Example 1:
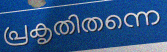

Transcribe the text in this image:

പ്രകൃതിതന്നെ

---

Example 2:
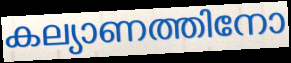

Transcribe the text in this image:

കല്യാണത്തിനോ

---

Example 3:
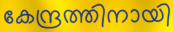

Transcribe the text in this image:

കേന്ദ്രത്തിനായി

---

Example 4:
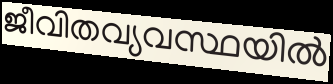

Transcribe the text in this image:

ജീവിതവ്യവസ്ഥയിൽ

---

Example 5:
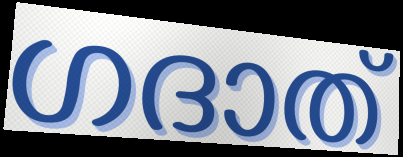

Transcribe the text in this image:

ഗദാത്